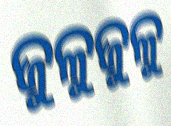
ଜୁଳୁଜୁଳୁ